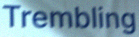
Trembling